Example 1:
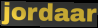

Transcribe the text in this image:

jordaar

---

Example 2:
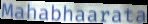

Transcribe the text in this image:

Mahabhaarata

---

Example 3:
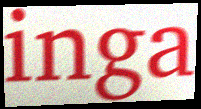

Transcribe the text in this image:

inga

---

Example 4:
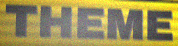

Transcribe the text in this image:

THEME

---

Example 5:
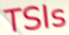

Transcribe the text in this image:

TSIs